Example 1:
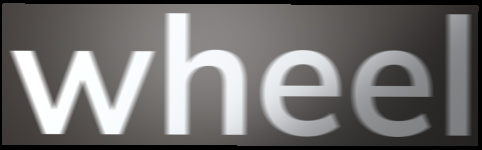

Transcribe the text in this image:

wheel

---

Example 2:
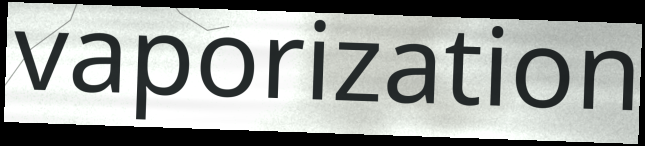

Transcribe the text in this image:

vaporization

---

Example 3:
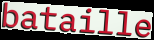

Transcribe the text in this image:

bataille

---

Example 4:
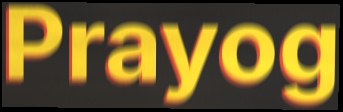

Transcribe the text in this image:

Prayog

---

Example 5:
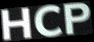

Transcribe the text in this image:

HCP